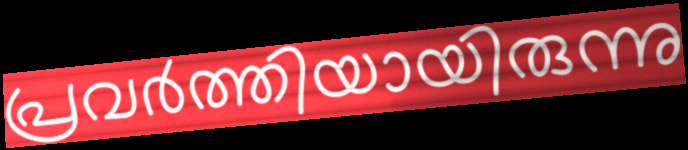
പ്രവർത്തിയായിരുന്നു